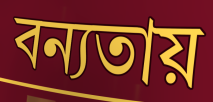
বন্যতায়